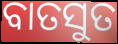
ବାତସୁତ